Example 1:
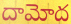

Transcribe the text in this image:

దామోద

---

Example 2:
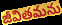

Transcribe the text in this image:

జీవితమను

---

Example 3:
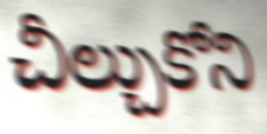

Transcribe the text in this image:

చీల్చుకోని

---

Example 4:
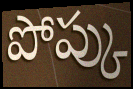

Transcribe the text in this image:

పోప్కు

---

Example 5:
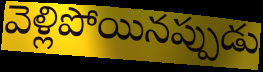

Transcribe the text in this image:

వెళ్లిపోయినప్పుడు